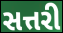
સત્તરી